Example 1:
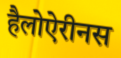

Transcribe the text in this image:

हैलोऐरीनस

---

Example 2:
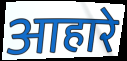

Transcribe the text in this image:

आहारे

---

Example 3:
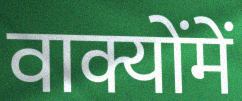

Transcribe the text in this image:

वाक्योंमें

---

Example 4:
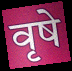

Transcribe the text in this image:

वृषे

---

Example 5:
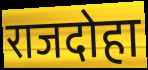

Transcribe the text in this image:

राजदोहा